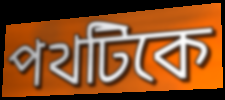
পথটিকে